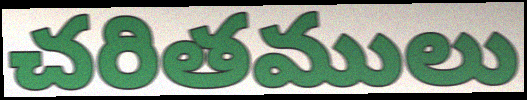
చరితములు